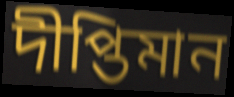
দীপ্তিমান